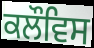
ਕਲੌਵਿਸ